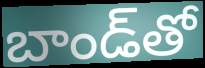
బాండ్‌తో